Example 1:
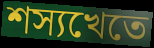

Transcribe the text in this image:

শস্যখেতে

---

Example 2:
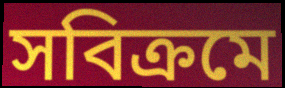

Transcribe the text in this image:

সবিক্রমে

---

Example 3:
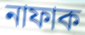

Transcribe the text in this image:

নাফাক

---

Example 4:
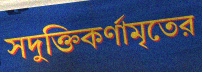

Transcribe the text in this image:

সদুক্তিকর্ণামৃতের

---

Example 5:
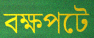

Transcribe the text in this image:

বক্ষপটে